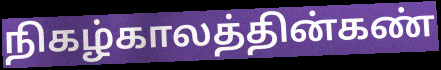
நிகழ்காலத்தின்கண்